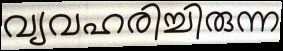
വ്യവഹരിച്ചിരുന്ന